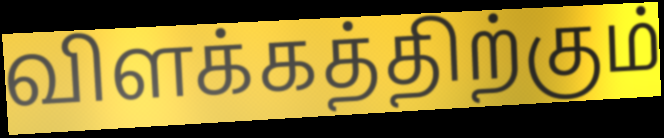
விளக்கத்திற்கும்